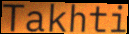
Takhti